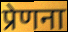
प्रेणना